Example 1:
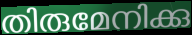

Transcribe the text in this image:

തിരുമേനിക്കു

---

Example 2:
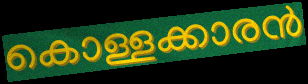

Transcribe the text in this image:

കൊള്ളക്കാരൻ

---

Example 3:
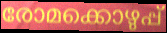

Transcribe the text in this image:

രോമക്കൊഴുപ്പ്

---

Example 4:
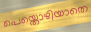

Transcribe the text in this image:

പെയ്തൊഴിയാതെ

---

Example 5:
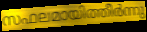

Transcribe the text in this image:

സഫലമായിത്തീർന്നു